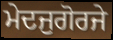
ਮੇਦਜੁਗੋਰਜੇ